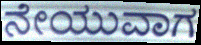
ನೇಯುವಾಗ